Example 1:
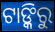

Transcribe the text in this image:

ଟାଙ୍କିରୁ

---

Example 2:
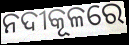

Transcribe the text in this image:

ନଦୀକୂଳରେ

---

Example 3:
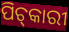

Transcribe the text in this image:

ପିଚ୍‌କାରୀ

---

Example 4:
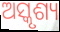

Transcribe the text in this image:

ଅସ୍କୃଶ୍ୟ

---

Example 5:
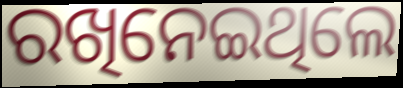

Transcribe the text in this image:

ରଖିନେଇଥିଲେ